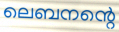
ലെബനന്റെ